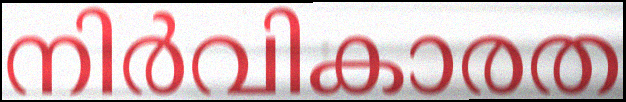
നിർവികാരത